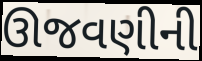
ઊજવણીની